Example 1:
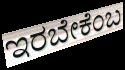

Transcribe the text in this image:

ಇರಬೇಕೆಂಬ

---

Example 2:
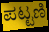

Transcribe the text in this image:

ಪಟ್ಟಣಿ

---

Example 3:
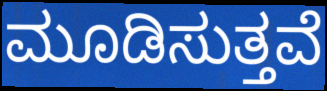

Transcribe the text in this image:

ಮೂಡಿಸುತ್ತವೆ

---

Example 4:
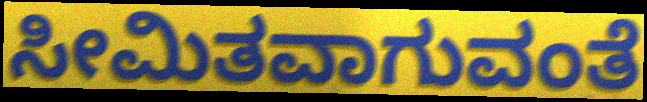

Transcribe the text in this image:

ಸೀಮಿತವಾಗುವಂತೆ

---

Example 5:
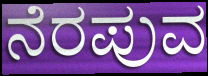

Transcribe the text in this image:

ನೆರಪುವ